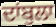
ਦਾਂਬੁਲਾ